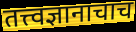
तत्त्वज्ञानाचाच